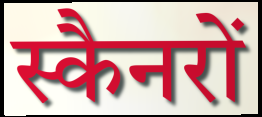
स्कैनरों